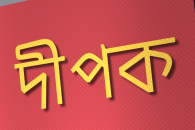
দীপক